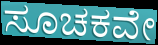
ಸೂಚಕವೇ